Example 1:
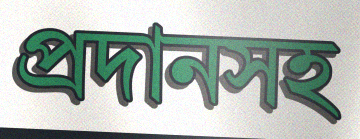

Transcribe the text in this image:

প্রদানসহ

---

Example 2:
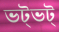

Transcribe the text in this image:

ভট্ভট্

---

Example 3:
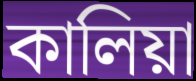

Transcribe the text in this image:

কালিয়া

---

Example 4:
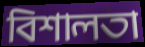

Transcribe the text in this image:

বিশালতা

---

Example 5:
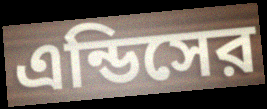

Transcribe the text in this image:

এন্ডিসের